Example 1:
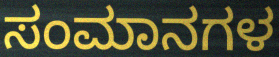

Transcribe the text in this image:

ಸಂಮಾನಗಳ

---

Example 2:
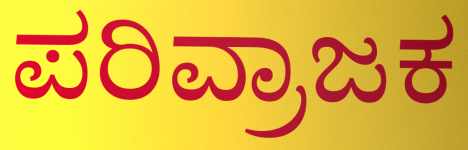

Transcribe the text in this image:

ಪರಿವ್ರಾಜಕ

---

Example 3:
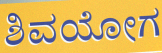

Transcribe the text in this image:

ಶಿವಯೋಗ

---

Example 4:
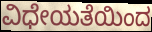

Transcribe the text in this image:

ವಿಧೇಯತೆಯಿಂದ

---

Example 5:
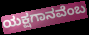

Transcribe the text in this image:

ಯಕ್ಷಗಾನವೆಂಬ